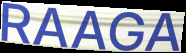
RAAGA